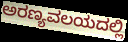
ಅರಣ್ಯವಲಯದಲ್ಲಿ